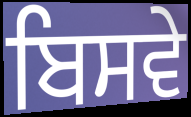
ਬਿਸਵੇ